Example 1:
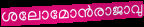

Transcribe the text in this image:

ശലോമോൻരാജാവു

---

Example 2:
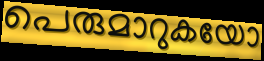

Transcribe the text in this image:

പെരുമാറുകയോ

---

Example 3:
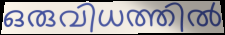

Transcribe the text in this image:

ഒരുവിധത്തിൽ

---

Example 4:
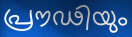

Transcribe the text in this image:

പ്രൗഢിയും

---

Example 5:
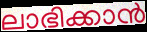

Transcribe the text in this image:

ലാഭിക്കാൻ